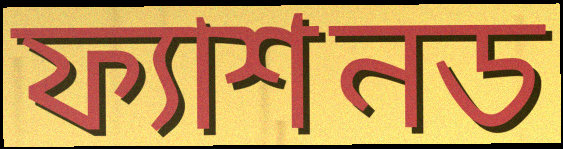
ফ্যাশনড